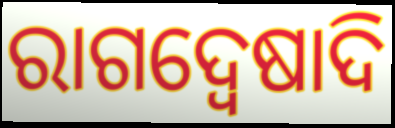
ରାଗଦ୍ୱେଷାଦି